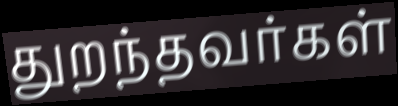
துறந்தவர்கள்